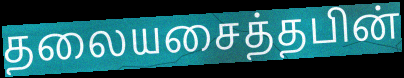
தலையசைத்தபின்